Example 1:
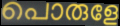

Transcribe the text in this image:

പൊരുളേ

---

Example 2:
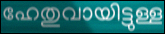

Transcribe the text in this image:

ഹേതുവായിട്ടുള്ള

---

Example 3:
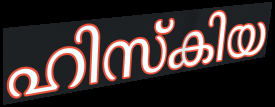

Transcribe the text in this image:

ഹിസ്കിയ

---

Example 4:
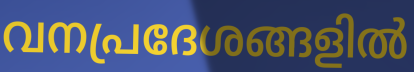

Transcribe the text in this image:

വനപ്രദേശങ്ങളിൽ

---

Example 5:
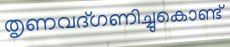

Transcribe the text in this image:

തൃണവദ്ഗണിച്ചുകൊണ്ട്